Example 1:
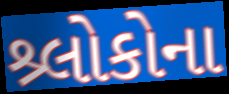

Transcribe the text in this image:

શ્ર્લોકોના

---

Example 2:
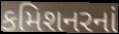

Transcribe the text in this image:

કમિશનરનાં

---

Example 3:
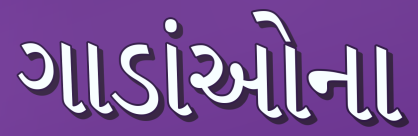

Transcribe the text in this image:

ગાડાંઓના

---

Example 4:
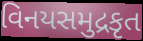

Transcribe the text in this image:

વિનયસમુદ્રકૃત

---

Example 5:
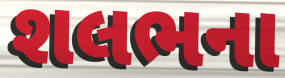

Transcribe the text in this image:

શલભના